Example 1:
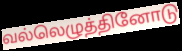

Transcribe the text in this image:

வல்லெழுத்தினோடு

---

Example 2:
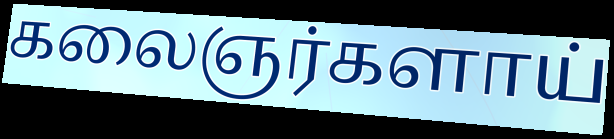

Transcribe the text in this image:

கலைஞர்களாய்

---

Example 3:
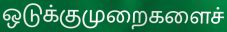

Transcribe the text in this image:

ஒடுக்குமுறைகளைச்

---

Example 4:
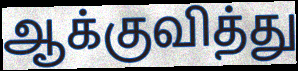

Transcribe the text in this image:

ஆக்குவித்து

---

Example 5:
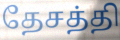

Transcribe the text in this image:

தேசத்தி